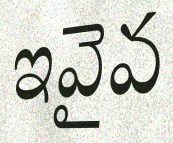
ఇవైవ